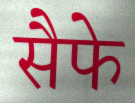
सैफे